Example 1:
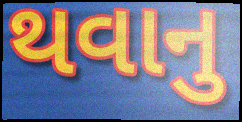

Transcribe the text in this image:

થવાનુ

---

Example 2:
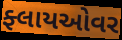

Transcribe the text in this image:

ફ્લાયઓવર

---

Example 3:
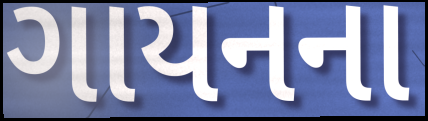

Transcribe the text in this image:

ગાયનના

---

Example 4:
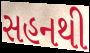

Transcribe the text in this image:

સહનથી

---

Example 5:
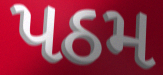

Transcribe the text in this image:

પઠમ